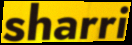
sharri